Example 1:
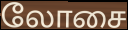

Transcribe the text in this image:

லோசை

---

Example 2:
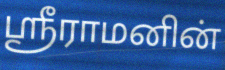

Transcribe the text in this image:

ஸ்ரீராமனின்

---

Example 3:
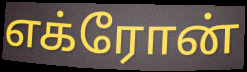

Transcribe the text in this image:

எக்ரோன்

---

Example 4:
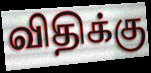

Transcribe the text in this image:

விதிக்கு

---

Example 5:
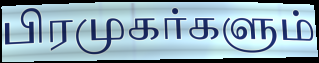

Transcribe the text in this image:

பிரமுகர்களும்